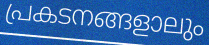
പ്രകടനങ്ങളാലും